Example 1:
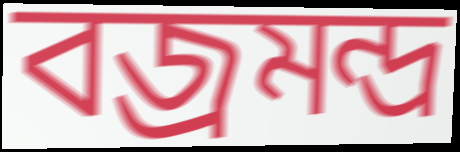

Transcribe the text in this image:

বজ্রমন্দ্র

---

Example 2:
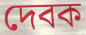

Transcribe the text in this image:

দেবক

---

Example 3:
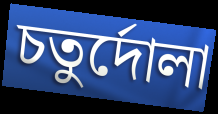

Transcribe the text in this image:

চতুর্দোলা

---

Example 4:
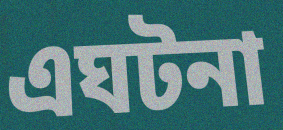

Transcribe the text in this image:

এঘটনা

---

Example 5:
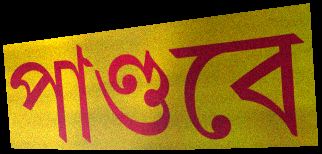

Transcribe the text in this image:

পাণ্ডবে